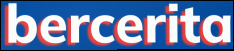
bercerita